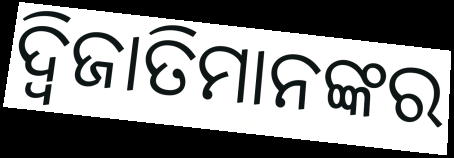
ଦ୍ୱିଜାତିମାନଙ୍କର